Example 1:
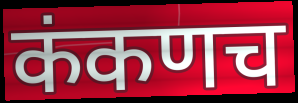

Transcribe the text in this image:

कंकणच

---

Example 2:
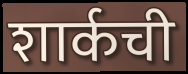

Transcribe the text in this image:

शार्कची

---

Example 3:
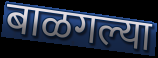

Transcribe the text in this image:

बाळगल्या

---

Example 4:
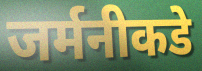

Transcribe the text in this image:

जर्मनीकडे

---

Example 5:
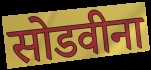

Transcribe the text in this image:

सोडवीना